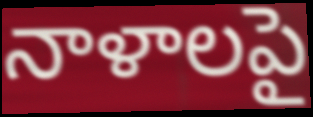
నాళాలపై